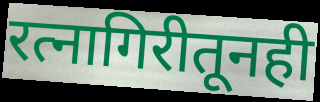
रत्नागिरीतूनही